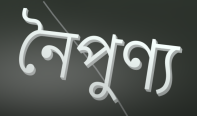
নৈপুণ্য